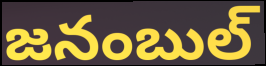
జనంబుల్